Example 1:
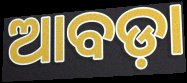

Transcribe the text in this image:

ଆବଡ଼ା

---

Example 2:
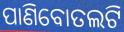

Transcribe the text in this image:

ପାଣିବୋତଲଟି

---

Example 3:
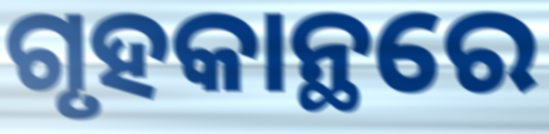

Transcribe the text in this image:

ଗୃହକାନ୍ଥରେ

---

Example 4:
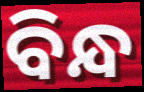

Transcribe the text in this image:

ବିନ୍ଧ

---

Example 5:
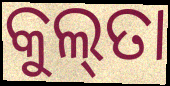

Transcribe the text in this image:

କୁଲ୍‌ତା